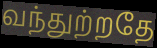
வந்துற்றதே